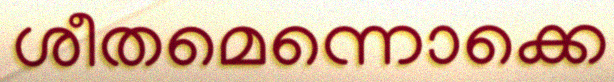
ശീതമെന്നൊക്കെ